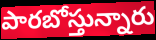
పారబోస్తున్నారు